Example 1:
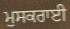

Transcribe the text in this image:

ਮੁਸਕਰਾਈ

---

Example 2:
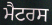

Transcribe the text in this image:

ਮੈਟਰਸ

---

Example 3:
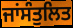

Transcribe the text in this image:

ਜਾਂਸੰਤੁਲਿਤ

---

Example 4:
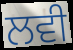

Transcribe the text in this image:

ਲਵੀ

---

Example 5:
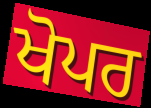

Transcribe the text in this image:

ਖੋਪਰ